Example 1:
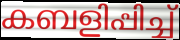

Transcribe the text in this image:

കബളിപ്പിച്ച്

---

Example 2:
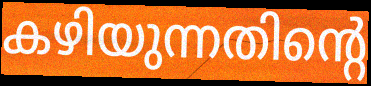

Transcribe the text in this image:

കഴിയുന്നതിന്റെ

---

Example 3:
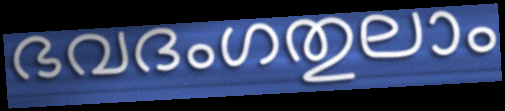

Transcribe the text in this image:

ഭവദംഗതുലാം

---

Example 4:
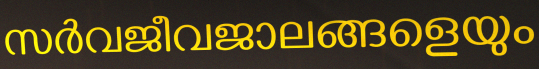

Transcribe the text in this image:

സർവജീവജാലങ്ങളെയും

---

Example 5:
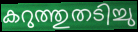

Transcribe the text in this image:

കറുത്തുതടിച്ചു